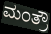
ಮಂತ್ರೌ